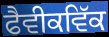
ਫੈਵੀਕਵਿੱਕ